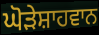
ਘੋੜੇਸ਼ਾਹਵਾਨ